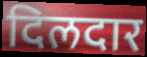
दिलदार